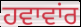
ਹਵਾਵਾਂਰ